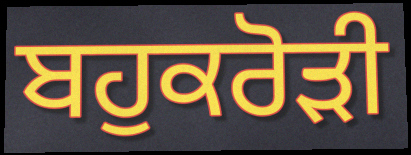
ਬਹੁਕਰੋਡ਼ੀ